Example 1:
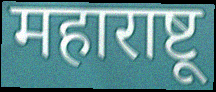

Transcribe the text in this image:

महाराष्टू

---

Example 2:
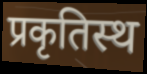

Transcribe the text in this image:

प्रकृतिस्थ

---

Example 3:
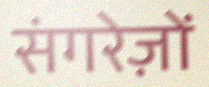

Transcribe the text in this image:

संगरेज़ों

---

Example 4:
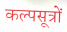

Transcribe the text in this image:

कल्पसूत्रों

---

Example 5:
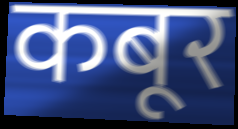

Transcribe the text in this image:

कबूर